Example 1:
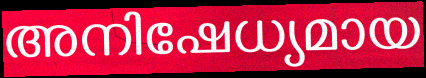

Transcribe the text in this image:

അനിഷേധ്യമായ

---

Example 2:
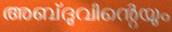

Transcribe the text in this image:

അബ്ദുവിന്റെയും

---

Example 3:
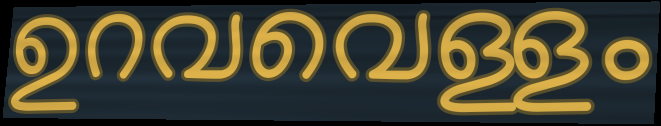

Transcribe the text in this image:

ഉറവവെള്ളം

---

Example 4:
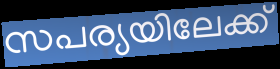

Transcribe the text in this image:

സപര്യയിലേക്ക്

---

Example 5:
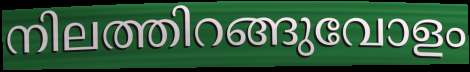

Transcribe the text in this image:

നിലത്തിറങ്ങുവോളം